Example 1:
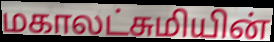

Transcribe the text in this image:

மகாலட்சுமியின்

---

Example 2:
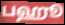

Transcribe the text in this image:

பஹூ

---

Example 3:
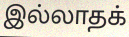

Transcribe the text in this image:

இல்லாதக்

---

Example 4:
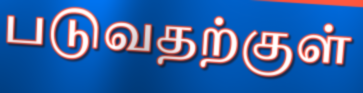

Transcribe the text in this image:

படுவதற்குள்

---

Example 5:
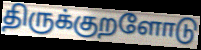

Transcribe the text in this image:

திருக்குறளோடு